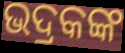
ଭଦ୍ରକଙ୍କ